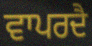
ਵਾਪਰਦੈ